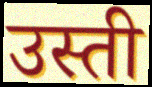
उस्ती